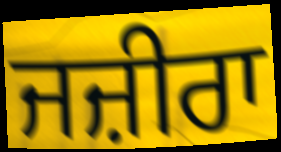
ਜਜ਼ੀਰਾ